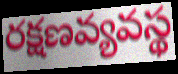
రక్షణవ్యవస్థ